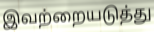
இவற்றையடுத்து